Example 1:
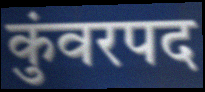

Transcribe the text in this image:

कुंवरपद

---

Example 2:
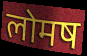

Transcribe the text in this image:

लोमष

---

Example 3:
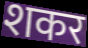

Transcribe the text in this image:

शकर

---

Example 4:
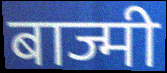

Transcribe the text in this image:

बाज्मी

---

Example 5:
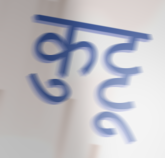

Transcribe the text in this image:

कुट्टू